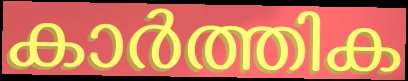
കാർത്തിക